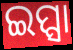
ଇପ୍ସା